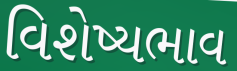
વિશેષ્યભાવ